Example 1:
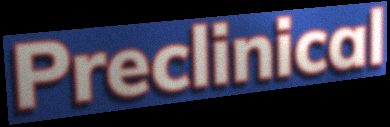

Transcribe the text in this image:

Preclinical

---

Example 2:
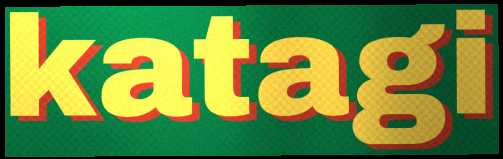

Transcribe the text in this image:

katagi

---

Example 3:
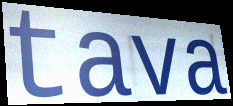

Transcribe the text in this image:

tava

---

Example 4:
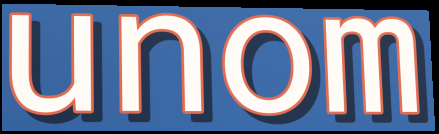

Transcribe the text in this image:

unom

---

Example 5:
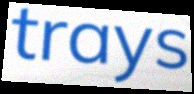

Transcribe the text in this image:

trays